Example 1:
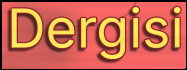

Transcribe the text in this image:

Dergisi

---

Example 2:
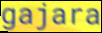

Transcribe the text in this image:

gajara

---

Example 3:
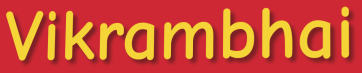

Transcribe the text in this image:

Vikrambhai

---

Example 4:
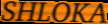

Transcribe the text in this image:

SHLOKA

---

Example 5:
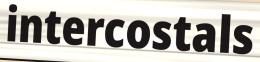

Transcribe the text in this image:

intercostals